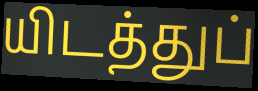
யிடத்துப்